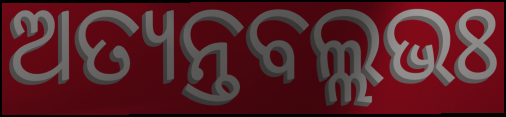
ଅତ୍ୟନ୍ତବଲ୍ଲଭଃ